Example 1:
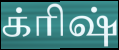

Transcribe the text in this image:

க்ரிஷ்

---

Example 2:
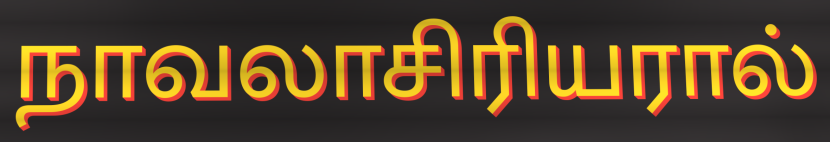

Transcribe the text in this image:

நாவலாசிரியரால்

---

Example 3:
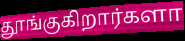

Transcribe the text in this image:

தூங்குகிறார்களா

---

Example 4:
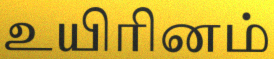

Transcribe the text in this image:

உயிரினம்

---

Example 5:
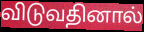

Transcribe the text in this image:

விடுவதினால்